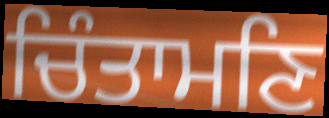
ਚਿੰਤਾਮਣਿ